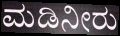
ಮಡಿನೀರು